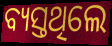
ବ୍ୟସ୍ତଥିଲେ